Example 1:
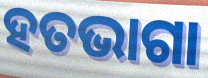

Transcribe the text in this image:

ହତଭାଗା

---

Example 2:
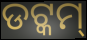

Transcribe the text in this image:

ଡଟ୍କମ୍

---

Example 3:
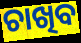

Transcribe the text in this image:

ଚାଖିବ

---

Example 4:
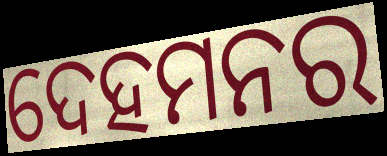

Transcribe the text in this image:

ଦେହମନର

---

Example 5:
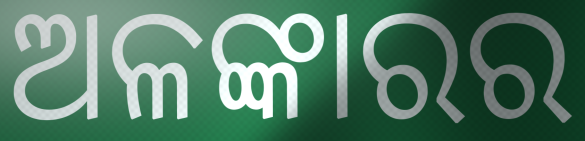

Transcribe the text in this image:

ଅଳଙ୍କାରର